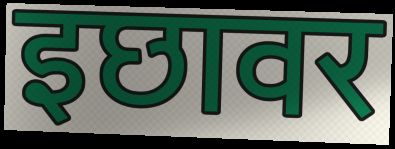
इछावर